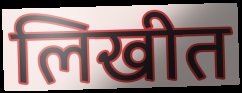
लिखीत